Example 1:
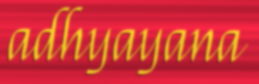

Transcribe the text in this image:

adhyayana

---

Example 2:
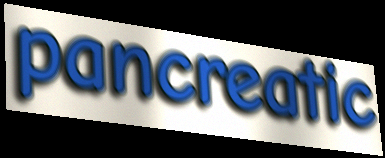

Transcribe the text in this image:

pancreatic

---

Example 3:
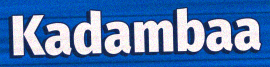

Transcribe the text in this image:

Kadambaa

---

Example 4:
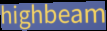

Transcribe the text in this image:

highbeam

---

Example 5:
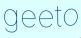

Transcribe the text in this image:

geeto